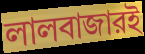
লালবাজারই